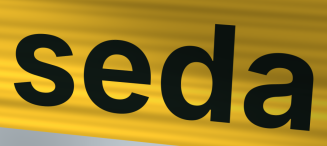
seda